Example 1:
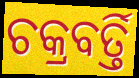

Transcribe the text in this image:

ଚକ୍ରବର୍ତ୍ତି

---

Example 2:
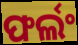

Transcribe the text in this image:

ଫର୍ଲଂ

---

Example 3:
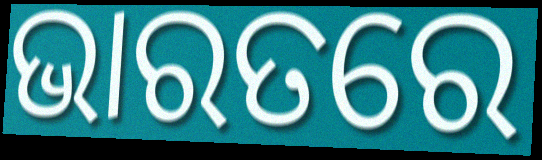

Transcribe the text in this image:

ଭାରତରେ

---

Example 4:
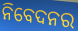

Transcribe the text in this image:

ନିବେଦନର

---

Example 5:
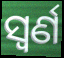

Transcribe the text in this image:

ସ୍ୱର୍ଣ